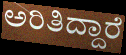
ಅರಿತಿದ್ದಾರೆ